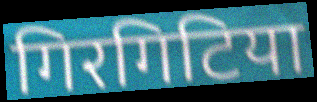
गिरगिटिया